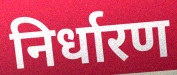
निर्धारण